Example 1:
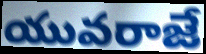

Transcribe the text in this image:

యువరాజే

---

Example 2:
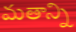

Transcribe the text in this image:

మతాన్ని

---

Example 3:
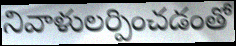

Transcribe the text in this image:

నివాళులర్పించడంతో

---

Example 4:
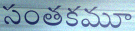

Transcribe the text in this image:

సంతకమూ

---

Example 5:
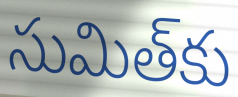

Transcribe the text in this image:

సుమిత్‌కు